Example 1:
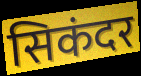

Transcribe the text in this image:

सिकंदर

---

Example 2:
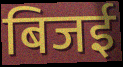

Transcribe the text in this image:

बिजई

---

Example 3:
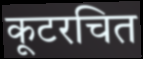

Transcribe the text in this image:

कूटरचित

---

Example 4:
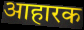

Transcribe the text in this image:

आहारक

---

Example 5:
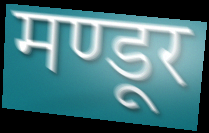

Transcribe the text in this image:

मण्डूर